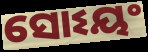
ସୋଽୟଂ